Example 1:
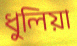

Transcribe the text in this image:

ধুলিয়া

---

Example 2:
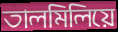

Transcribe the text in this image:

তালমিলিয়ে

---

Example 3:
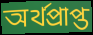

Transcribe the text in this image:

অর্থপ্রাপ্ত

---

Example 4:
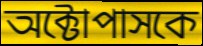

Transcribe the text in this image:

অক্টোপাসকে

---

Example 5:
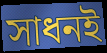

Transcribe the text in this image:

সাধনই